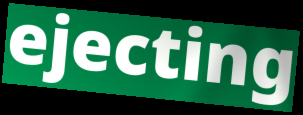
ejecting